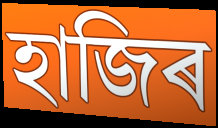
হাজিৰ